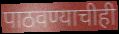
पाठवण्याचीही